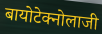
बायोटेक्नोलाजी